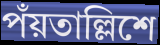
পঁয়তাল্লিশে